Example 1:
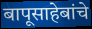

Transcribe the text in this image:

बापूसाहेबांचे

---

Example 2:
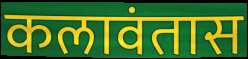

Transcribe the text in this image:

कलावंतास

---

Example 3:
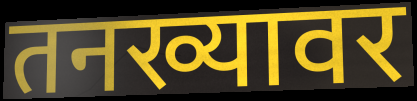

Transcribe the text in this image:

तनख्यावर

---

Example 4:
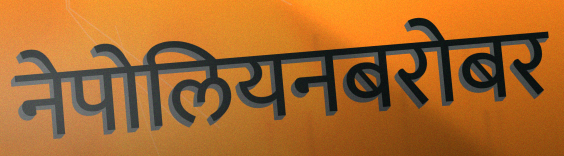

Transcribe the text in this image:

नेपोलियनबरोबर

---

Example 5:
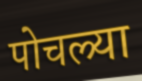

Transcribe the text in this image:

पोचल्या